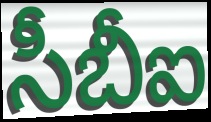
సీబీఐ